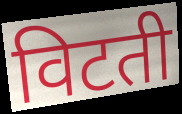
विटती